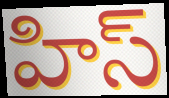
హిస్